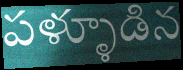
పళ్ళూడిన